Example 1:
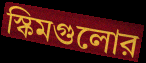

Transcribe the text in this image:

স্কিমগুলোর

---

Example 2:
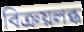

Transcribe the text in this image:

বিক্রয়লব্ধ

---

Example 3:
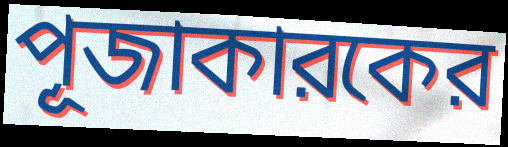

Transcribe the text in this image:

পূজাকারকের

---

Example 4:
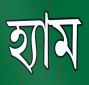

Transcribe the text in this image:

হ্যাম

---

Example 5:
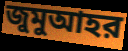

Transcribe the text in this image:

জুমুআহর